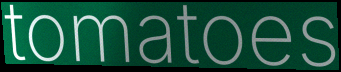
tomatoes